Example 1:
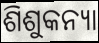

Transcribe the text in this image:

ଶିଶୁକନ୍ଯା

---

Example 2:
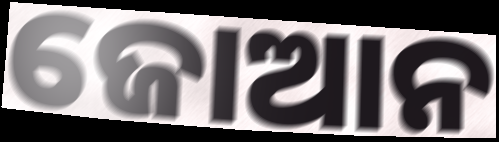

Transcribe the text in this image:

ଜୋଆନ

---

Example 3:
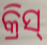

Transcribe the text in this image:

କ୍ରିସ୍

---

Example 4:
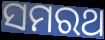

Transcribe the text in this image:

ସମରଥ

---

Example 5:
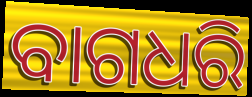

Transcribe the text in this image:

ବାଗଧରି